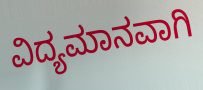
ವಿದ್ಯಮಾನವಾಗಿ